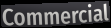
Commercial